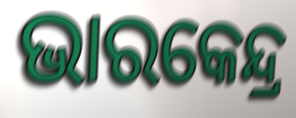
ଭାରକେନ୍ଦ୍ର